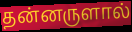
தன்னருளால்